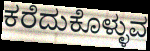
ಕರೆದುಕೊಳ್ಳುವ